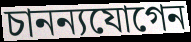
চানন্যযোগেন